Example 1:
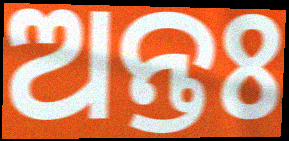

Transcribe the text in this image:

ଅନ୍ତଃ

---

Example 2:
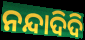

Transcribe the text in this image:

ନନ୍ଦାଦିଦି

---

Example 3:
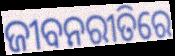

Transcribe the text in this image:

ଜୀବନରୀତିରେ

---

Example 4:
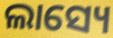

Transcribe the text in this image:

ଲାସ୍ୟେ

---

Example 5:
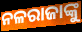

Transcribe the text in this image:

ନଳରାଜାଙ୍କୁ